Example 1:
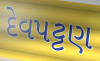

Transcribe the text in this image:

દેવપટ્ટણ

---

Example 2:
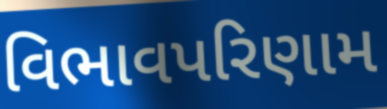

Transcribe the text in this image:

વિભાવપરિણામ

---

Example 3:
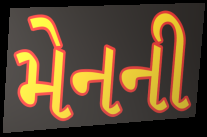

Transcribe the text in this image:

મેનની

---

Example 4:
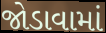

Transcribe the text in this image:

જોડાવામાં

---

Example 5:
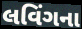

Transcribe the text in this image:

લવિંગના